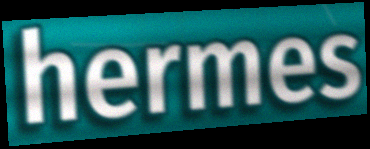
hermes